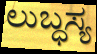
ಲುಬ್ಧಸ್ಯ